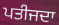
ਪਤੀਜਦਾ